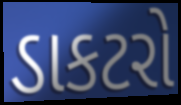
ડાકટરો